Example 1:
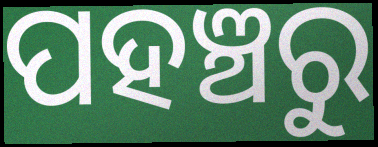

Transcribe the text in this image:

ପହଞ୍ଚରୁ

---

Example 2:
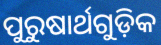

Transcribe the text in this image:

ପୁରୁଷାର୍ଥଗୁଡ଼ିକ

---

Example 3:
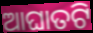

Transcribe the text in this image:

ଆଘାତଟି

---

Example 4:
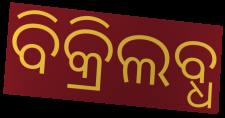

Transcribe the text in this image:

ବିକ୍ରିଲବ୍ଧ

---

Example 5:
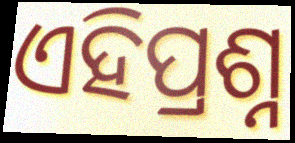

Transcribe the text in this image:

ଏହିପ୍ରଶ୍ନ